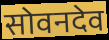
सोवनदेव